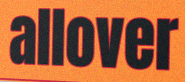
allover